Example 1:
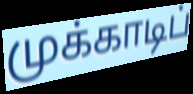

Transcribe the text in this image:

முக்காடிப்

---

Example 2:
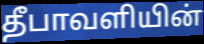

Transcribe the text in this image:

தீபாவளியின்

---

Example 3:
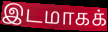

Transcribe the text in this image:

இடமாகக்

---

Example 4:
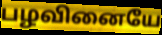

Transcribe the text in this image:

பழவினையே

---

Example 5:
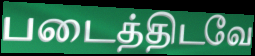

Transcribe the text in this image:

படைத்திடவே